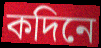
কদিনে